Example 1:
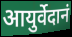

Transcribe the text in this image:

आयुर्वेदानं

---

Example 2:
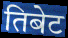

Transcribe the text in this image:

तिबेट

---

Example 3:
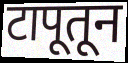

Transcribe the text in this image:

टापूतून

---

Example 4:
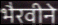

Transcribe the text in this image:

भैरवीने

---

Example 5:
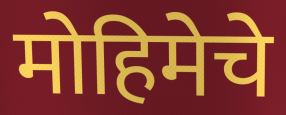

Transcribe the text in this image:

मोहिमेचे